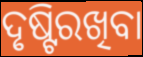
ଦୃଷ୍ଟିରଖିବା